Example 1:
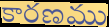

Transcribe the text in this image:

కారణము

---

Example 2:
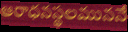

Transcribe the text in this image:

ఆరాధనస్థలముననే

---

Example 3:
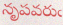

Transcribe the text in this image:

నృపవరుఁ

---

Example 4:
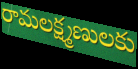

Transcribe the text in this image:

రామలక్ష్మణులకు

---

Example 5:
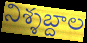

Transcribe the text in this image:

నిశ్శబ్దాల